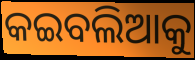
କଇବଲିଆକୁ